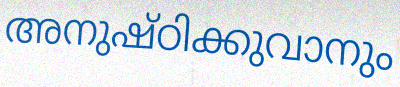
അനുഷ്ഠിക്കുവാനും